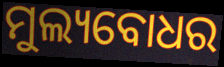
ମୁଲ୍ୟବୋଧର